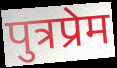
पुत्रप्रेम